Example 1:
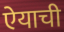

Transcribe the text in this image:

ऐयाची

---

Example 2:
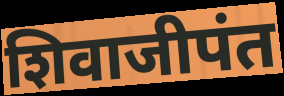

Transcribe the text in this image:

शिवाजीपंत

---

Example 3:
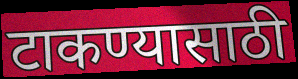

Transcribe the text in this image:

टाकण्यासाठी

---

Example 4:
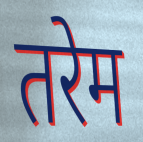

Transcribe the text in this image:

तरेम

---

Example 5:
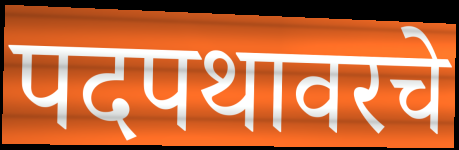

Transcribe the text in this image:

पदपथावरचे